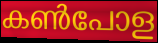
കൺപോള